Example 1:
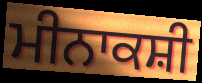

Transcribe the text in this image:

ਮੀਨਾਕਸ਼ੀ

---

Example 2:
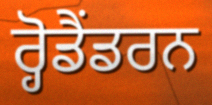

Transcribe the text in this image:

ਰ੍ਹੋਡੈਂਡਰਨ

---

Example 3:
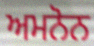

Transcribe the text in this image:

ਅਮਨੋਨ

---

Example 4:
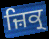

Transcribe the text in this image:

ਜ਼ਿਕ੍ਰ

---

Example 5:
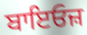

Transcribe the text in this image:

ਬਾਇਓਜ਼